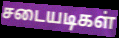
சடையடிகள்